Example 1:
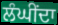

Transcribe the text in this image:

ਲੰਘੀਂਦਾ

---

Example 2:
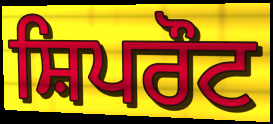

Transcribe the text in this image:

ਸ਼ਿਪਰੌਟ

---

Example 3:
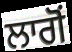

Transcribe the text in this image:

ਲਾਗੋਂ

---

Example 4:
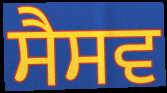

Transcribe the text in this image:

ਸੈਸਵ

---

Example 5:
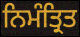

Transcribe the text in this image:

ਨਿਮੰਤ੍ਰਿਤ